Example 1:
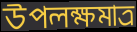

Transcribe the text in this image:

উপলক্ষমাত্র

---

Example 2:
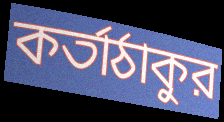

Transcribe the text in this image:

কর্তাঠাকুর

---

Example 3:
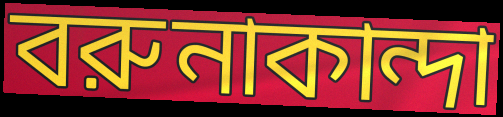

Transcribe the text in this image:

বরুনাকান্দা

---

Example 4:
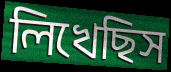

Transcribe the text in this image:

লিখেছিস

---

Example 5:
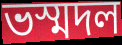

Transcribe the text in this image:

ভস্মদল